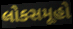
લોકસમૂહો